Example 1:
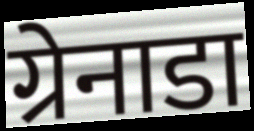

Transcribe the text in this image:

ग्रेनाडा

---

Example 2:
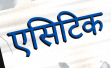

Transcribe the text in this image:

एसिटिक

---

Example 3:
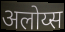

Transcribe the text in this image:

अलोय्स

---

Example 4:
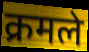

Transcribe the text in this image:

क्रमले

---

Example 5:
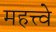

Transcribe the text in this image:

महत्त्वे